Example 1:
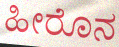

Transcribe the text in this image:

ಹೀರೊನ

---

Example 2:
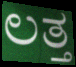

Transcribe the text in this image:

ಲತ್ತ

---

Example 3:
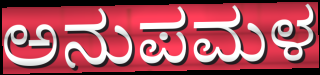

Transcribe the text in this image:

ಅನುಪಮಳ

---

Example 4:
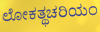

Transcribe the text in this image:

ಲೋಕತ್ಥಚರಿಯಂ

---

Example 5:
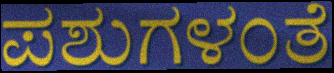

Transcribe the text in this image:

ಪಶುಗಳಂತೆ